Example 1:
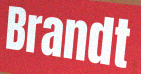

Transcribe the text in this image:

Brandt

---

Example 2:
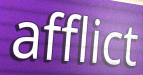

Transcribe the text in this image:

afflict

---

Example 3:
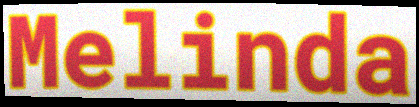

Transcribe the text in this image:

Melinda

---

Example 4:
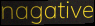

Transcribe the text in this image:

nagative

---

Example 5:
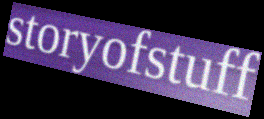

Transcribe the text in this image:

storyofstuff